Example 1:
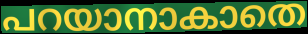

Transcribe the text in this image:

പറയാനാകാതെ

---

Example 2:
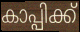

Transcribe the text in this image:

കാപ്പിക്ക്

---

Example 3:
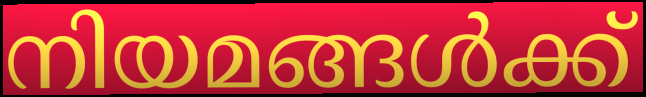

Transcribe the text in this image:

നിയമങ്ങൾക്ക്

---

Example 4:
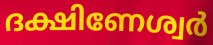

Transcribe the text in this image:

ദക്ഷിണേശ്വർ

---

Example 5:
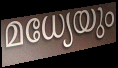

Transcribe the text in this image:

മധ്യേയും